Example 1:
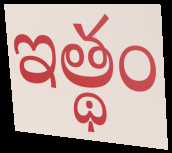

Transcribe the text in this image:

ఇత్థం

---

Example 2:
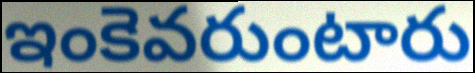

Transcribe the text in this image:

ఇంకెవరుంటారు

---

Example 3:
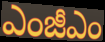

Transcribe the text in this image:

ఎంజీఎం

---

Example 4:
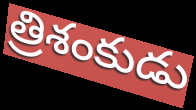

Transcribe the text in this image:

త్రిశంకుడు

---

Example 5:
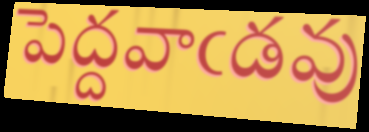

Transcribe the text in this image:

పెద్దవాఁడవు